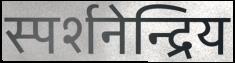
स्पर्शनेन्द्रिय